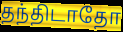
தந்திடாதோ